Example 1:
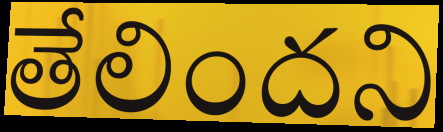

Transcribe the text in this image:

తేలిందని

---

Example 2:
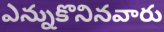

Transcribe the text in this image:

ఎన్నుకొనినవారు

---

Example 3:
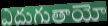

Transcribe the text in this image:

ఎదుగుతాయో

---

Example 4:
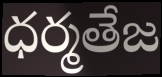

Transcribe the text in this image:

ధర్మతేజ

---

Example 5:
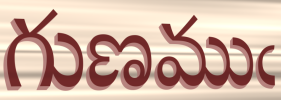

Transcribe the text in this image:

గుణముఁ